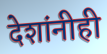
देशांनीही